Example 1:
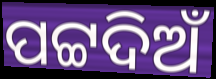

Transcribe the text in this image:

ପଟ୍ଟଦିଅଁ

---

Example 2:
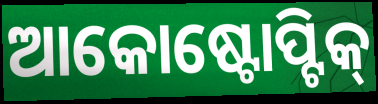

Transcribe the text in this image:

ଆକୋଷ୍ଟୋପ୍ଟିକ୍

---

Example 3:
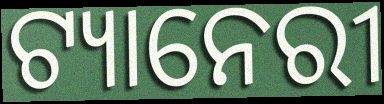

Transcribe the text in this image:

ଟ୍ୟାନେରୀ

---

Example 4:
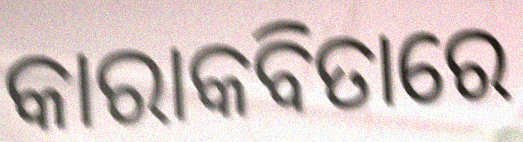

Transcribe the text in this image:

କାରାକବିତାରେ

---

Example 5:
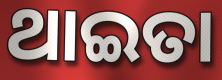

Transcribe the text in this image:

ଥାଇତା